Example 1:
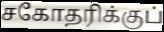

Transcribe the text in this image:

சகோதரிக்குப்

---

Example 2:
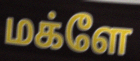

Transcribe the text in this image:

மக்ளே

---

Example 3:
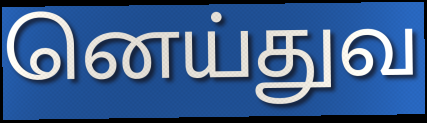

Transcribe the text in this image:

னெய்துவ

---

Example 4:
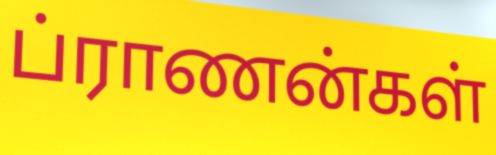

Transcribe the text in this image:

ப்ராணன்கள்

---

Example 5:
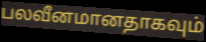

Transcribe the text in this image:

பலவீனமானதாகவும்